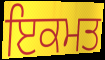
ਇਕਮਤ